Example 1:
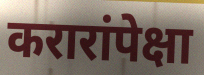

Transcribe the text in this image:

करारांपेक्षा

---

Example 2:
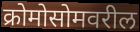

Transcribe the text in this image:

क्रोमोसोमवरील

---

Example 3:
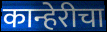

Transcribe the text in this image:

कान्हेरीचा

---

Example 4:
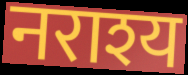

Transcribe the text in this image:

नराश्य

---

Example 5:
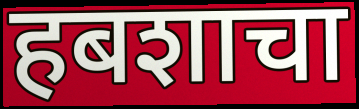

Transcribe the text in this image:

हबशाचा